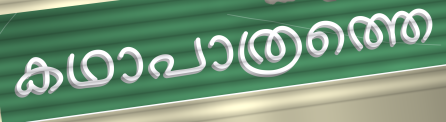
കഥാപാത്രത്തെ